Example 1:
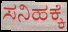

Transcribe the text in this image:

ಸನಿಹಕ್ಕೆ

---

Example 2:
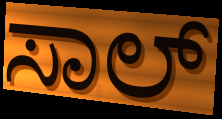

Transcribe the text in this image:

ಸಾಲ್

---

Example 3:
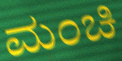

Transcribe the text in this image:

ಮಂಚಿ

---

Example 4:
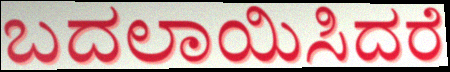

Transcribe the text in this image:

ಬದಲಾಯಿಸಿದರೆ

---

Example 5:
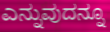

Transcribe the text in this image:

ಎನ್ನುವುದನ್ನೂ